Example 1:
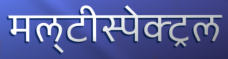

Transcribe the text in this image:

मल्टीस्पेक्ट्रल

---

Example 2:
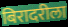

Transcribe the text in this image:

बिरादरीला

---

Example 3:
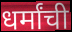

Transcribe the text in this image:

धर्मांची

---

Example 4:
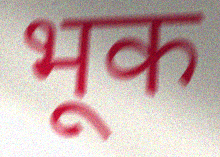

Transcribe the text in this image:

भूक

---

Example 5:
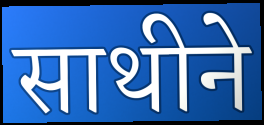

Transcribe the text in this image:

साथीने